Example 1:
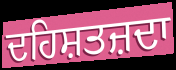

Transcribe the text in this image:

ਦਹਿਸ਼ਤਜ਼ਦਾ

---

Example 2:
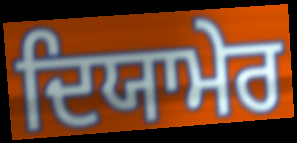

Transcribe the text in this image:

ਦਿਯਾਮੇਰ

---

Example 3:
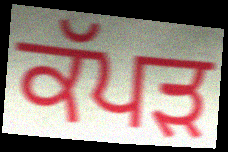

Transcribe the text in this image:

ਕੱਪੜ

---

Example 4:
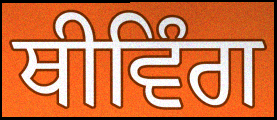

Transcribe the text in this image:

ਥੀਵਿੰਗ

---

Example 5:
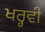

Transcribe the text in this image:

ਖਰ੍ਹਵੀ